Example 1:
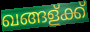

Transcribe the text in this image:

ഖങ്ങള്ക്ക്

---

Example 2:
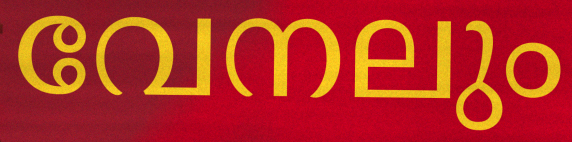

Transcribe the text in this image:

വേനലും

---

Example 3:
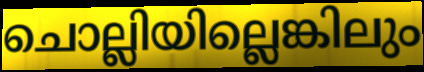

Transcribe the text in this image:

ചൊല്ലിയില്ലെങ്കിലും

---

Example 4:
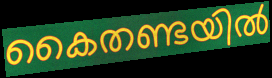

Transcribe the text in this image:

കൈതണ്ടയിൽ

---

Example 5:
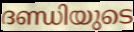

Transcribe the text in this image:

ദണ്ഡിയുടെ